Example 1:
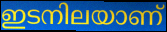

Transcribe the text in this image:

ഇടനിലയാണ്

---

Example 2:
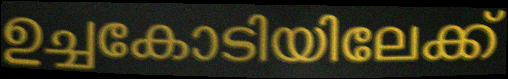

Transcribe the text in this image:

ഉച്ചകോടിയിലേക്ക്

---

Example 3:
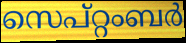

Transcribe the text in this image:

സെപ്റ്റംബർ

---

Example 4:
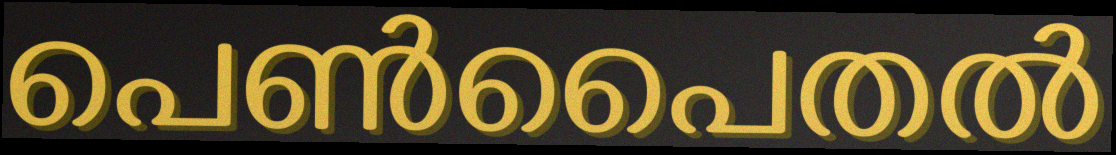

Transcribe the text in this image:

പെൺപൈതൽ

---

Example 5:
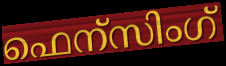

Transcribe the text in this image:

ഫെന്സിംഗ്